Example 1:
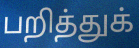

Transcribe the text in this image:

பறித்துக்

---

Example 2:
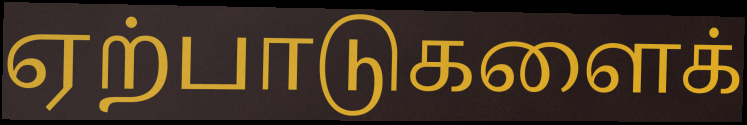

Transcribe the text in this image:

ஏற்பாடுகளைக்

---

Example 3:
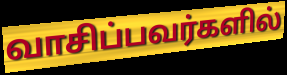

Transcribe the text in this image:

வாசிப்பவர்களில்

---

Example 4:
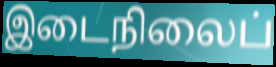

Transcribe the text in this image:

இடைநிலைப்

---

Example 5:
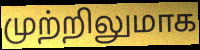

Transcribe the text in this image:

முற்றிலுமாக